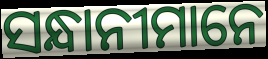
ସନ୍ଧାନୀମାନେ